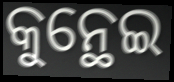
କୁନ୍ଥେଇ